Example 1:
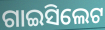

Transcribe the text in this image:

ଗାଇସିଲେଟ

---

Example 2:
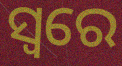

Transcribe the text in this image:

ସ୍ୱରେ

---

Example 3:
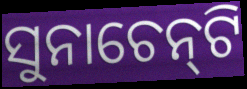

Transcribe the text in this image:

ସୁନାଚେନ୍‍ଟି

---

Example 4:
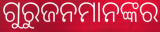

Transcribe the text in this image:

ଗୁରୁଜନମାନଙ୍କର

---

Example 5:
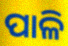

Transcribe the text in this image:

ପାଳି